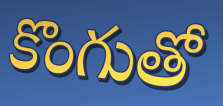
కొంగుతో